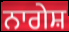
ਨਾਗੇਸ਼